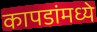
कापडांमध्ये